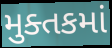
મુક્તકમાં